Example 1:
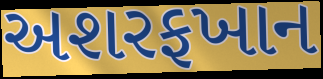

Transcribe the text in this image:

અશરફખાન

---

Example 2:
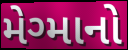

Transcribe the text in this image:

મેગ્માનો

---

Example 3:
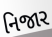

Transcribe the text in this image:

નિજાર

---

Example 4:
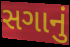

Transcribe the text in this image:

સગાનું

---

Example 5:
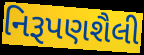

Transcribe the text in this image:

નિરૂપણશૈલી